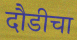
दौडीचा